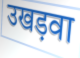
उखड़वा